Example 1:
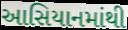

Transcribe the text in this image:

આસિયાનમાંથી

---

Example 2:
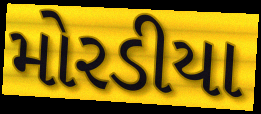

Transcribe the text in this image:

મોરડીયા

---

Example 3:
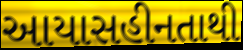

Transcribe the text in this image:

આયાસહીનતાથી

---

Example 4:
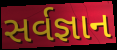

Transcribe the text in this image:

સર્વજ્ઞાન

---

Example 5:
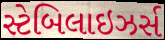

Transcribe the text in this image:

સ્ટેબિલાઇઝર્સ